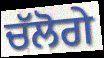
ਚੱਲੋਗੇ